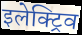
इलेक्ट्रिव